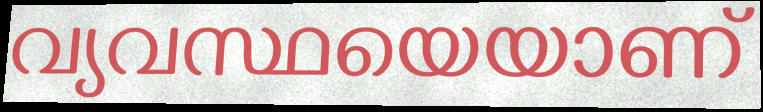
വ്യവസ്ഥയെയാണ്